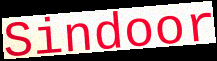
Sindoor